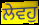
ਲੇਵਹੁ